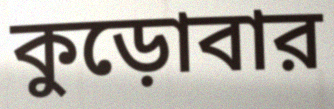
কুড়োবার